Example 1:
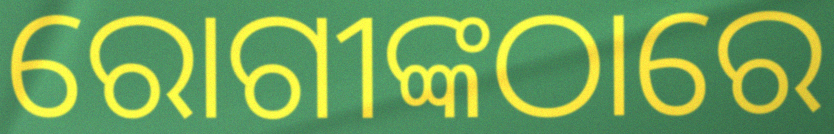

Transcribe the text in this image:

ରୋଗୀଙ୍କଠାରେ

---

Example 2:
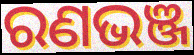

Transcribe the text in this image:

ରଣଭଞ୍ଜ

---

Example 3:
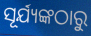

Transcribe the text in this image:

ସୂର୍ଯ୍ୟଙ୍କଠାରୁ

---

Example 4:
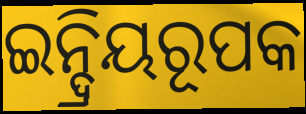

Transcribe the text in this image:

ଇନ୍ଦ୍ରିୟରୂପକ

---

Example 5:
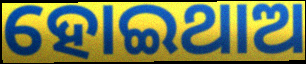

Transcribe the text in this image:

ହୋଇଥାଅ